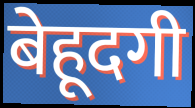
बेहूदगी